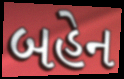
બહેન